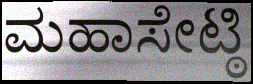
ಮಹಾಸೇಟ್ಠಿ